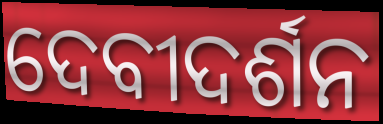
ଦେବୀଦର୍ଶନ